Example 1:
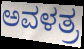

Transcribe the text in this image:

ಅವಳತ್ರ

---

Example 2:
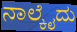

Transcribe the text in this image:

ನಾಲ್ಕೈದು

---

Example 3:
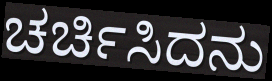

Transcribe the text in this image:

ಚರ್ಚಿಸಿದನು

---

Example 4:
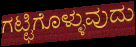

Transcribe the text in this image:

ಗಟ್ಟಿಗೊಳ್ಳುವುದು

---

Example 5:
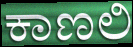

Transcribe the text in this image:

ಕಾಣಲಿ